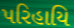
પરિહાયિ